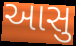
આસુ